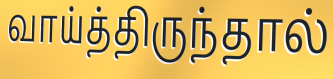
வாய்த்திருந்தால்